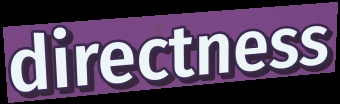
directness